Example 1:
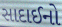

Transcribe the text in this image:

સાદાઈનો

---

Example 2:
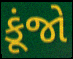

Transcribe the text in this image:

કૂંજો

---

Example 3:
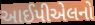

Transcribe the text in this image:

આઈપીએલનો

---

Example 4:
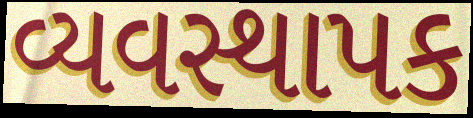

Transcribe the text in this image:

વ્યવસ્થાપક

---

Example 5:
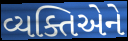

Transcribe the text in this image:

વ્યક્તિએને